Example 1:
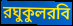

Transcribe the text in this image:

রঘুকুলরবি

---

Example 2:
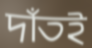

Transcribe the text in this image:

দাঁতই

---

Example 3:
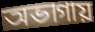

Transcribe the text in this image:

অভাগায়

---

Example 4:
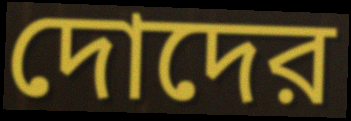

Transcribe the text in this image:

দোদের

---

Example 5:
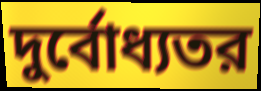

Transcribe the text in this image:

দুর্বোধ্যতর